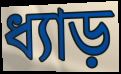
ধ্যাড়